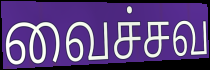
வைச்சவ